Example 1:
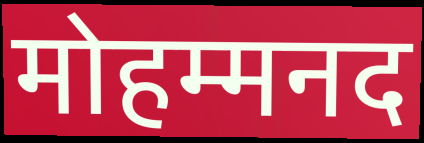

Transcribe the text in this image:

मोहम्मनद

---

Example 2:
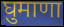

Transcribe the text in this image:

घुमाणा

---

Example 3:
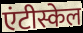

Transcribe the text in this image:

एंटीस्केल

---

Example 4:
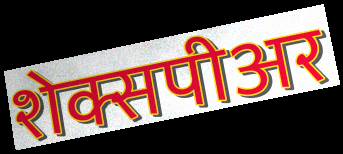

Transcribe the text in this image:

शेक्सपीअर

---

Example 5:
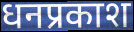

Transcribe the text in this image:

धनप्रकाश